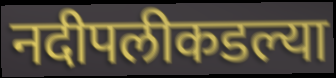
नदीपलीकडल्या